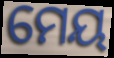
ମେୟ